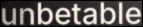
unbetable